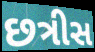
છત્રીસ